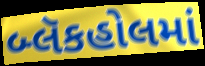
બ્લૅકહોલમાં